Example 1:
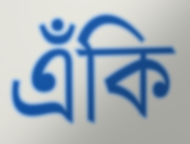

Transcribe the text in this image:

এঁকি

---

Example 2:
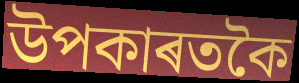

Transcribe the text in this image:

উপকাৰতকৈ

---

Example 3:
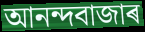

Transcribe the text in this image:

আনন্দবাজাৰ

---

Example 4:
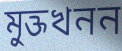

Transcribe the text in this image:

মুক্তখনন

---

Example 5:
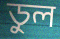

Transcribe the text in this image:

ডুল